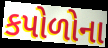
કપોળોના